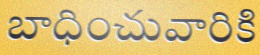
బాధించువారికి